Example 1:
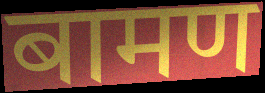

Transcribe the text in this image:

बामण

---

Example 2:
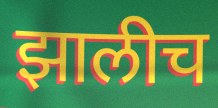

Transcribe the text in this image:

झालीच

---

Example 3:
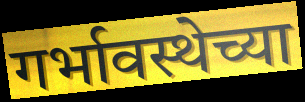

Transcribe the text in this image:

गर्भावस्थेच्या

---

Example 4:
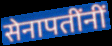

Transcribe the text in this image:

सेनापतींनीं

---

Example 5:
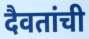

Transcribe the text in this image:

दैवतांची